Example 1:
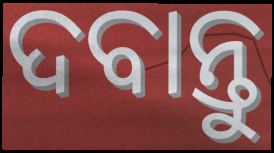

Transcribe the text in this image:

ଦବାନ୍ତୁ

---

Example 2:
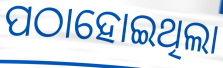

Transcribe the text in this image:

ପଠାହୋଇଥିଲା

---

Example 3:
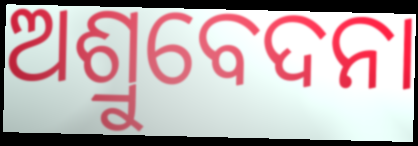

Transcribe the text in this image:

ଅଶ୍ରୁବେଦନା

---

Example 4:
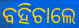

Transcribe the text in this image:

ବହିଚାଲେ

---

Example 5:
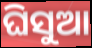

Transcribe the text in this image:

ଘିସୁଆ